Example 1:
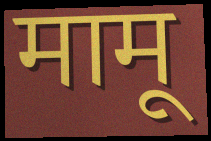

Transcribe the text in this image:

मामू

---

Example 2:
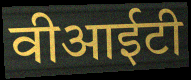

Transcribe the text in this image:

वीआईटी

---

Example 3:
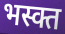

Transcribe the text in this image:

भस्क्त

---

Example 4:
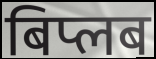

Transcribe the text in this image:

बिप्लब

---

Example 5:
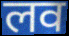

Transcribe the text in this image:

लव